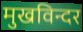
मुखविन्दर